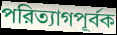
পরিত্যাগপূর্বক